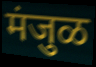
मंजुळ